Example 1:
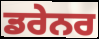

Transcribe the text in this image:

ਡਰੇਨਰ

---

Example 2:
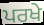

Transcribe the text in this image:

ਪਰਖੇ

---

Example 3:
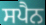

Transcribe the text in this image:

ਸਪੈਨ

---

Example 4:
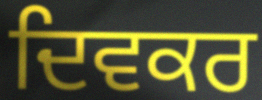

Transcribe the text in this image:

ਦਿਵਕਰ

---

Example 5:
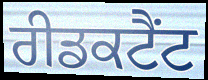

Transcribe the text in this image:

ਰੀਡਕਟੈਂਟ